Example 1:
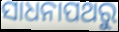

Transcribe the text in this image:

ସାଧନାପଥରୁ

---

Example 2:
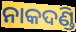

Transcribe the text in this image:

ନାକଦଣ୍ଡି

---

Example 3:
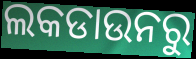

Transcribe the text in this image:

ଲକଡାଉନରୁ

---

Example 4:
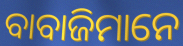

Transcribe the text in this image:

ବାବାଜିମାନେ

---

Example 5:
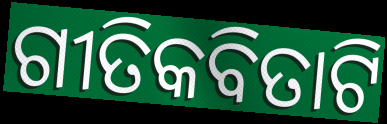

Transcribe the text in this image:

ଗୀତିକବିତାଟି